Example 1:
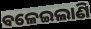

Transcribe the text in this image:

ବଳେଇଲାଣି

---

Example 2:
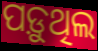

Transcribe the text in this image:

ପଡ଼ୁଥିଲ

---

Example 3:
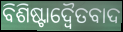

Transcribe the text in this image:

ବିଶିଷ୍ଟାଦ୍ଵୈତବାଦ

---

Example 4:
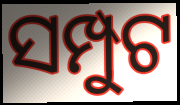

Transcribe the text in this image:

ସମ୍ପୁଟ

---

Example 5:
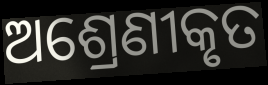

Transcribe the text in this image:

ଅଶ୍ରେଣୀକୃତ